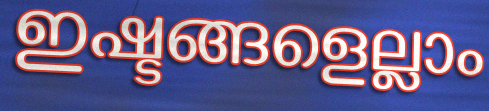
ഇഷ്ടങ്ങളെല്ലാം